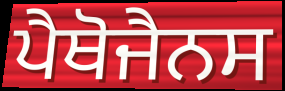
ਪੈਥੋਜੈਨਸ